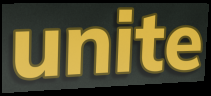
unite